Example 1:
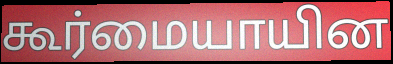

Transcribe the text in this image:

கூர்மையாயின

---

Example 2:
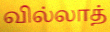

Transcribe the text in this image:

வில்லாத்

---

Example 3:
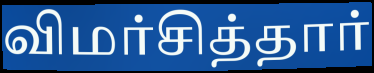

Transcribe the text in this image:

விமர்சித்தார்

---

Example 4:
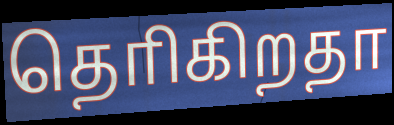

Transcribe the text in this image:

தெரிகிறதா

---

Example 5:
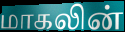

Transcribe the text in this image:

மாகலின்